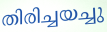
തിരിച്ചയച്ചു